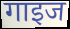
गाइज